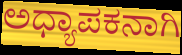
ಅಧ್ಯಾಪಕನಾಗಿ